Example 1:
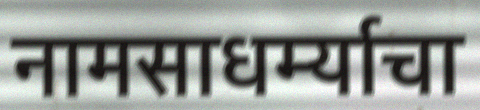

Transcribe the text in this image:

नामसाधर्म्याचा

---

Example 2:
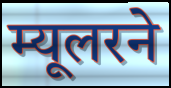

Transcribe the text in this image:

म्यूलरने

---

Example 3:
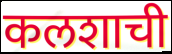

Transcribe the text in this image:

कलशाची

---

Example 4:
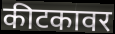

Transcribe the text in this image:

कीटकावर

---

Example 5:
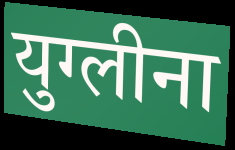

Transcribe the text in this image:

युग्लीना